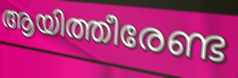
ആയിത്തീരേണ്ട